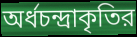
অর্ধচন্দ্রাকৃতির